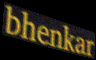
bhenkar